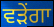
ਵੜੇਂਗਾ